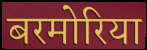
बरमोरिया